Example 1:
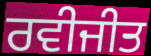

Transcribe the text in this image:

ਰਵੀਜੀਤ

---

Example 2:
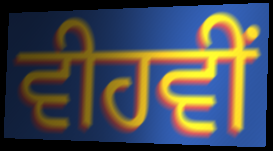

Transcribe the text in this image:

ਵੀਹਵੀਂ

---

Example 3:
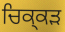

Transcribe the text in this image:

ਚਿਕ੍ਕੜ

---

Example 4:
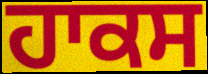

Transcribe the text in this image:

ਹਾਕਸ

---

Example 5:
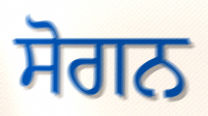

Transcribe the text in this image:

ਸੋਗਨ